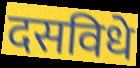
दसविधे